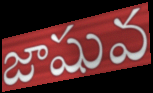
జాషువ